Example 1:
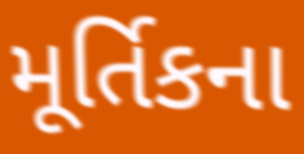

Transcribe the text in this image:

મૂર્તિકના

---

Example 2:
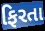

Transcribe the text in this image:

ફિરતા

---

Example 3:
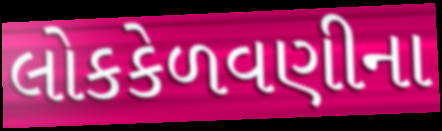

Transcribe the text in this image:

લોકકેળવણીના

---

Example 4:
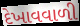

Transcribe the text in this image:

દેખાવવાળી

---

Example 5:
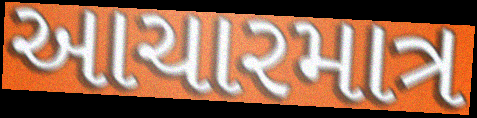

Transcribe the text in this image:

આચારમાત્ર